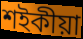
শইকীয়া